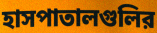
হাসপাতালগুলির